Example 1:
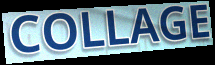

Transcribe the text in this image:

COLLAGE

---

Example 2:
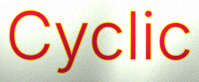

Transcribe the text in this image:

Cyclic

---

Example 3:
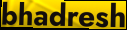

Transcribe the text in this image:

bhadresh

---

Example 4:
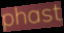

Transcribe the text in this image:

phast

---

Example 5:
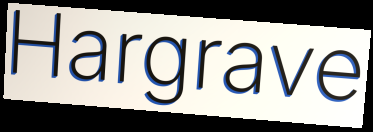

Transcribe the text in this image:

Hargrave